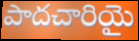
పాదచారియై